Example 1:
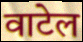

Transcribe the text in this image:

वाटेल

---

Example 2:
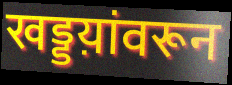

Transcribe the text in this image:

खड्डय़ांवरून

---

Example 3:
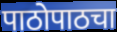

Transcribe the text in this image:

पाठोपाठचा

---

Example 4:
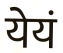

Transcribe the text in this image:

येयं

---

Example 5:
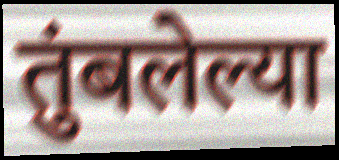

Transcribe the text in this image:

तुंबलेल्या